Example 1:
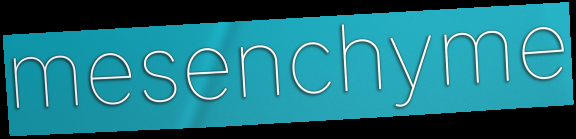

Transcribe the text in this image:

mesenchyme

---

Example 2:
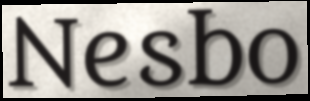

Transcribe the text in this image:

Nesbo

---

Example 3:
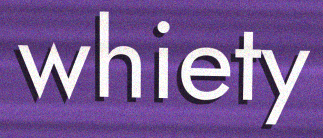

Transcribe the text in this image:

whiety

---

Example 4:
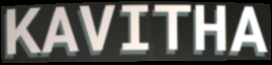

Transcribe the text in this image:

KAVITHA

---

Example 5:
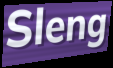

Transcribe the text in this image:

Sleng